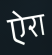
ऐरा